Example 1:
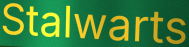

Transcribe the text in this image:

Stalwarts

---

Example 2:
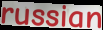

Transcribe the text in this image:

russian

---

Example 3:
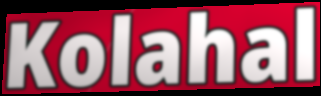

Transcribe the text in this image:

Kolahal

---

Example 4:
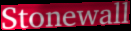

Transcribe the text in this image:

Stonewall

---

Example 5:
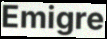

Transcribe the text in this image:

Emigre